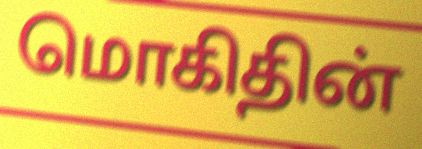
மொகிதின்